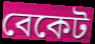
বেকেট